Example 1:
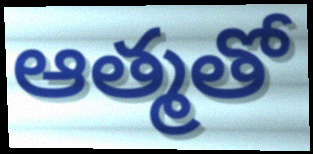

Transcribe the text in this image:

ఆత్మతో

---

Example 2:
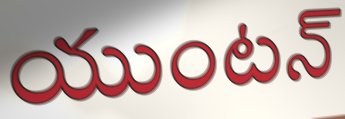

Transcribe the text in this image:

యుంటన్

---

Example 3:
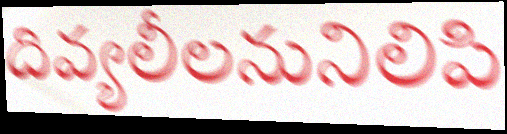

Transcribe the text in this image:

దివ్యలీలనునిలిపి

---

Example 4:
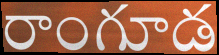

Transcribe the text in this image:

రాంగూడ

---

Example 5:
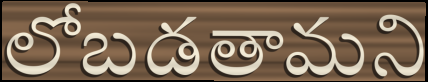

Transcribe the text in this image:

లోబడతామని